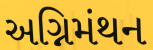
અગ્નિમંથન